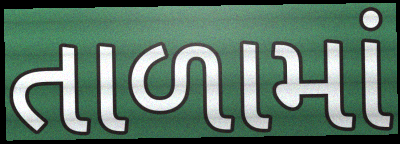
તાળામાં